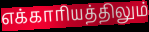
எக்காரியத்திலும்